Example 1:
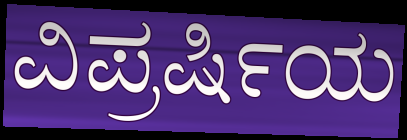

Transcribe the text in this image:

ವಿಪ್ರರ್ಷಿಯ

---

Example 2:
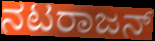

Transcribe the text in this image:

ನಟರಾಜನ್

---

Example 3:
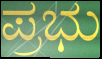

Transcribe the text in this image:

ಪ್ರಭು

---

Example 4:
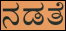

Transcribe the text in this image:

ನಡತೆ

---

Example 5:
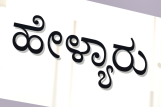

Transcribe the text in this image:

ಹೇಳ್ಯಾರು